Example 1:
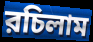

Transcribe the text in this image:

রচিলাম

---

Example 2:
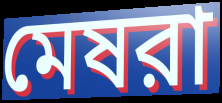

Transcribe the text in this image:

মেষরা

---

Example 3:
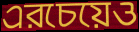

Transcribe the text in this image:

এরচেয়েও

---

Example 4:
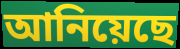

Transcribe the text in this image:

আনিয়েছে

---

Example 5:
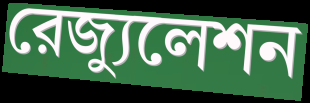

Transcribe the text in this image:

রেজ্যুলেশন